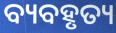
ବ୍ୟବହୃତ୍ୟ